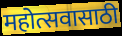
महोत्सवासाठी